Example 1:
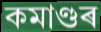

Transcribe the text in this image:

কমাণ্ডৰ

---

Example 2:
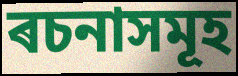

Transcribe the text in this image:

ৰচনাসমূহ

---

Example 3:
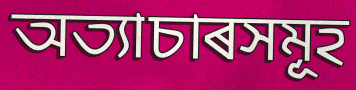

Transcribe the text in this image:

অত্যাচাৰসমূহ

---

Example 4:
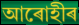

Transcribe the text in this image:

আৰোহীৰ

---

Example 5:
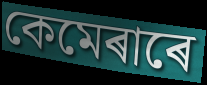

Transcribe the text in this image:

কেমেৰাৰে